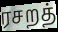
ரசறத்